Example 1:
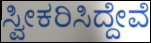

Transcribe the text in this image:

ಸ್ವೀಕರಿಸಿದ್ದೇವೆ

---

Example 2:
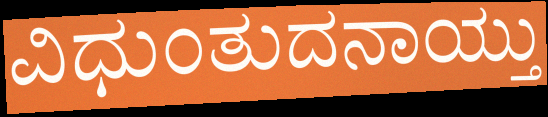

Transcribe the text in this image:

ವಿಧುಂತುದನಾಯ್ತು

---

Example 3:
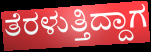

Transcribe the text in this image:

ತೆರಳುತ್ತಿದ್ದಾಗ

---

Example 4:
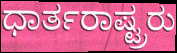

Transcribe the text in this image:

ಧಾರ್ತರಾಷ್ಟ್ರರು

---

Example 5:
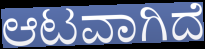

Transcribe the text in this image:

ಆಟವಾಗಿದೆ